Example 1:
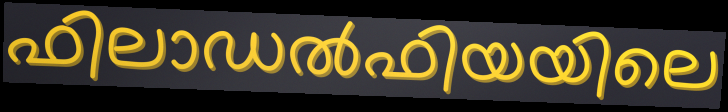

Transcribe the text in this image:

ഫിലാഡൽഫിയയിലെ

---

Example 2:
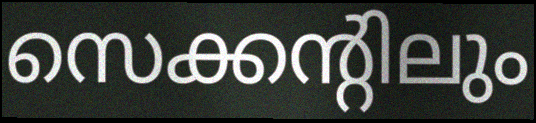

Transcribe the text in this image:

സെക്കന്റിലും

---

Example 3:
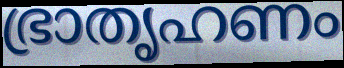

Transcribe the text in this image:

ഭ്രാതൃഹണം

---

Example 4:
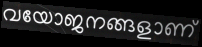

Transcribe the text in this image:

വയോജനങ്ങളാണ്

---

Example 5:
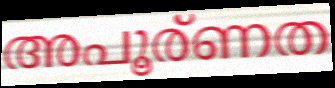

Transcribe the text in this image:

അപൂര്ണത